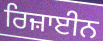
ਰਿਜ਼ਾਈਨ